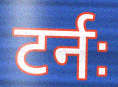
टर्नः